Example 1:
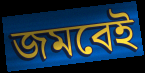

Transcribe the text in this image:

জমবেই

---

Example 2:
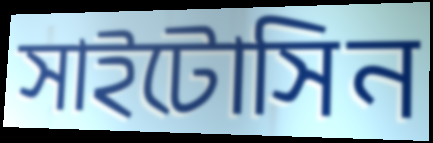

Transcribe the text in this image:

সাইটোসিন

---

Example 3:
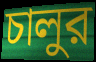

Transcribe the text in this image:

চালুর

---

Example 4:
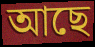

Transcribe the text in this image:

আছে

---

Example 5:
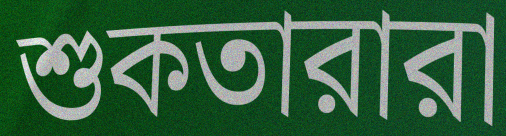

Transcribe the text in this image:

শুকতারারা